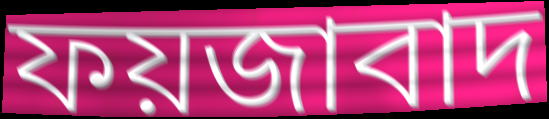
ফয়জাবাদ